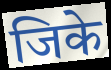
जिके